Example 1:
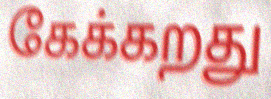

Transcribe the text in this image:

கேக்கறது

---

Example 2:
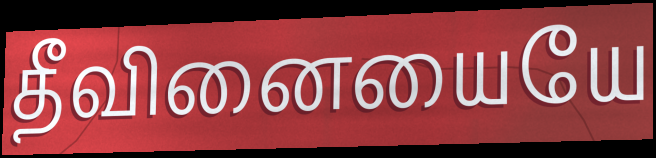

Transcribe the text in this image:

தீவினையையே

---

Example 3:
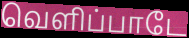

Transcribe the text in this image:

வெளிப்பாடே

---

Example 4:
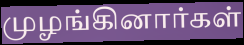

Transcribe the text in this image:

முழங்கினார்கள்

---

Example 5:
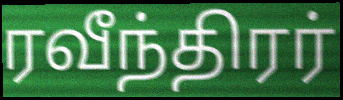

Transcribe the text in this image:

ரவீந்திரர்